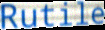
Rutile